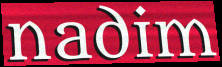
nadim